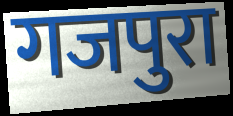
गजपुरा